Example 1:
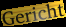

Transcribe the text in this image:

Gericht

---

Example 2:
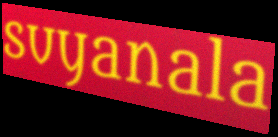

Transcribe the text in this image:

suyanala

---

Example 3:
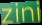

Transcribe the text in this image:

zini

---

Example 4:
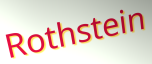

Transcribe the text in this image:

Rothstein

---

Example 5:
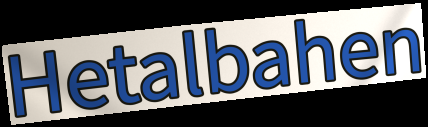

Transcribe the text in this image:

Hetalbahen